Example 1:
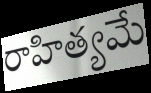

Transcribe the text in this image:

రాహిత్యమే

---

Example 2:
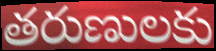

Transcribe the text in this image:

తరుణులకు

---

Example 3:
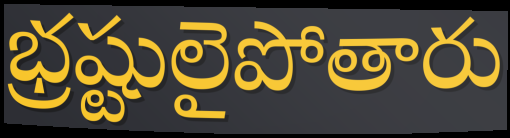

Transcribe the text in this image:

భ్రష్టులైపోతారు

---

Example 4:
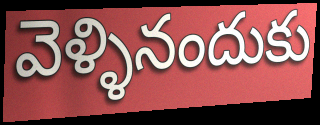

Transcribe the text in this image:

వెళ్ళినందుకు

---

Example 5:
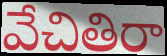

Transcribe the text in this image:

వేచితిరా